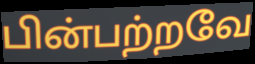
பின்பற்றவே